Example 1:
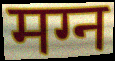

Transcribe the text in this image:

मग्‍न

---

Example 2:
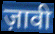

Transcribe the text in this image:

ज़ावी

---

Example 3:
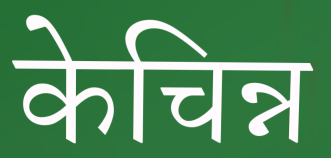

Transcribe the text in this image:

केचिन्न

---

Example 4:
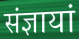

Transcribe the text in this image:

संज्ञायां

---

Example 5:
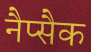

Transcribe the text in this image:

नैप्सैक